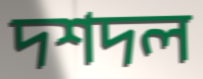
দশদল